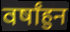
वर्षांहुन